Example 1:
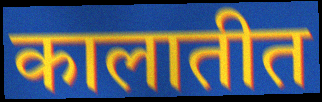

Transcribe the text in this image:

कालातीत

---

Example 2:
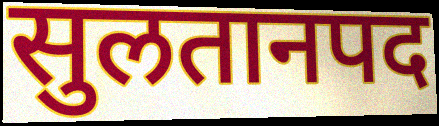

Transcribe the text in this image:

सुलतानपद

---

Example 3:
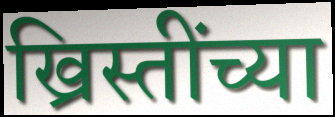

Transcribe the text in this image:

ख्रिस्तींच्या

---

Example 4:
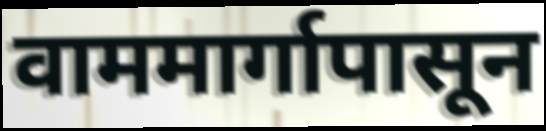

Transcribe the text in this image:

वाममार्गापासून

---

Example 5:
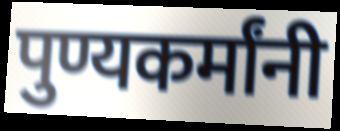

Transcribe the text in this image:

पुण्यकर्मांनी